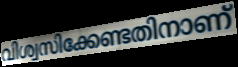
വിശ്വസിക്കേണ്ടതിനാണ്